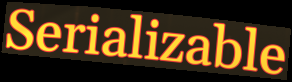
Serializable